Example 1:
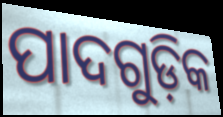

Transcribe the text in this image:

ପାଦଗୁଡ଼ିକ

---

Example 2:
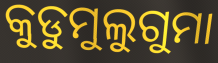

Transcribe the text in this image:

କୁଡୁମୁଲୁଗୁମା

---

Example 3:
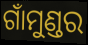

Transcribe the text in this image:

ଗାଁମୁଣ୍ଡର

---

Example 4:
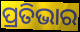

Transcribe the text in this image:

ପ୍ରତିଭାର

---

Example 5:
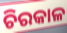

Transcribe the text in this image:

ଚିରକାଳ